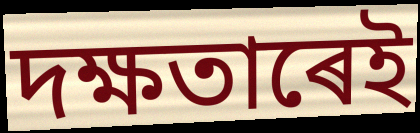
দক্ষতাৰেই